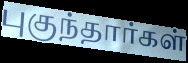
புகுந்தார்கள்